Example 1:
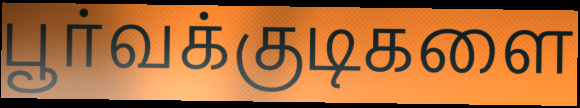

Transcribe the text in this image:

பூர்வக்குடிகளை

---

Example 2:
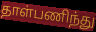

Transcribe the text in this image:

தாள்பணிந்து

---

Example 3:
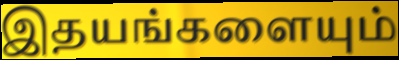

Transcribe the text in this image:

இதயங்களையும்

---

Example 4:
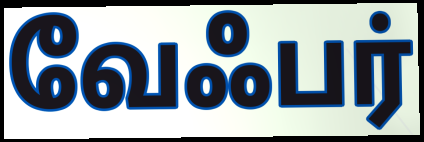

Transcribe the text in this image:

வேஃபர்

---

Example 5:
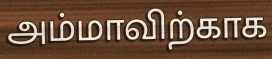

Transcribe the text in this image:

அம்மாவிற்காக